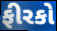
ફીરકો